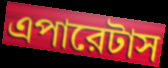
এপারেটাস